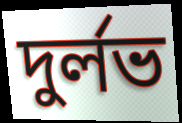
দুৰ্লভ